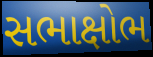
સભાક્ષોભ